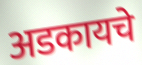
अडकायचे